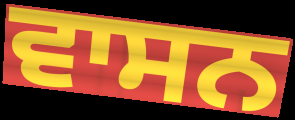
ਵਾਸਨ